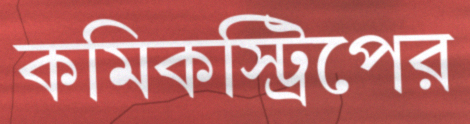
কমিকস্ট্রিপের